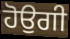
ਹੋਉਗੀ